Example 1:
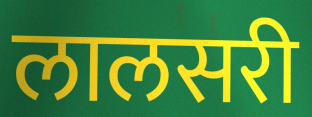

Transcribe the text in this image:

लालसरी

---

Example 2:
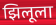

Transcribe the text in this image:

झिलूला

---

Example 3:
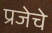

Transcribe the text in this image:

प्रजेचे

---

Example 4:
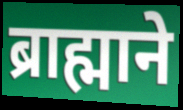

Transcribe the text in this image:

ब्राह्माने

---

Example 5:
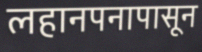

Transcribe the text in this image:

लहानपनापासून